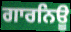
ਗਾਰਨਿਊ